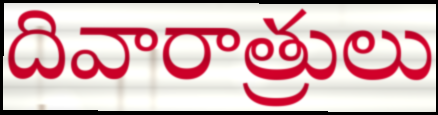
దివారాత్రులు